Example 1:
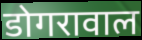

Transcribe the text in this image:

डोगरावाल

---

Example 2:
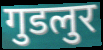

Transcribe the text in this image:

गुडलुर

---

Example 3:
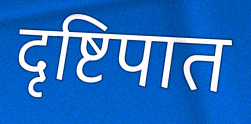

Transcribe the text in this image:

दृष्टिपात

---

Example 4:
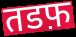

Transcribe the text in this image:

तडफ़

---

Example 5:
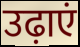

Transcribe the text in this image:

उढ़ाएं